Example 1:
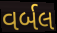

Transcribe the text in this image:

વર્બલ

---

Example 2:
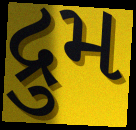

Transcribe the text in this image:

દ્રુમ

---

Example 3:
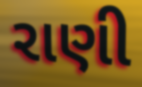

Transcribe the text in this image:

રાણી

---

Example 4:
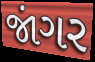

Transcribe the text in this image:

જાંગર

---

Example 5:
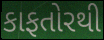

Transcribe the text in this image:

કાફતોરથી